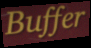
Buffer